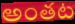
అంతట